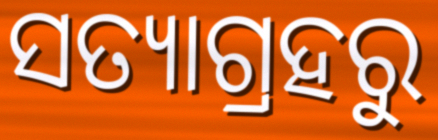
ସତ୍ୟାଗ୍ରହରୁ